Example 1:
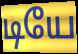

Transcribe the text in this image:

டியே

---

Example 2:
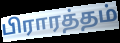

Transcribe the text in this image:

பிராரத்தம்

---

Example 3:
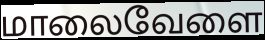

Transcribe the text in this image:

மாலைவேளை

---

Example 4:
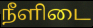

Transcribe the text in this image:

நீளிடை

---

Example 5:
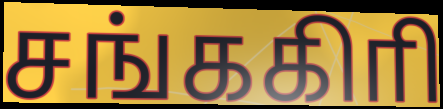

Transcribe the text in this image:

சங்ககிரி